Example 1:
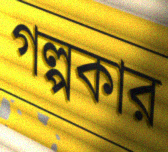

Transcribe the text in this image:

গল্পকার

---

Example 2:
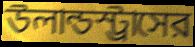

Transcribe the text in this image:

উলান্ডস্ট্রাসের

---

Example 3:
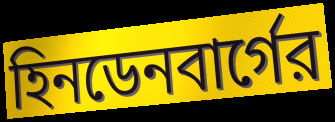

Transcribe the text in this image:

হিনডেনবার্গের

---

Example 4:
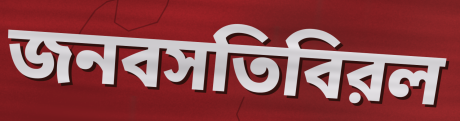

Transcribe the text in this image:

জনবসতিবিরল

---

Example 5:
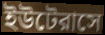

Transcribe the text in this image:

ইউটেরাসে